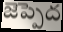
జెప్పెద